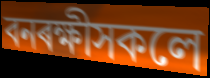
বনৰক্ষীসকলে